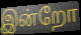
இன்றோ